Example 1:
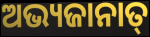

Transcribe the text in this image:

ଅଭ୍ୟଜାନାତ୍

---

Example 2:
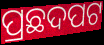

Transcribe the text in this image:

ପ୍ରଛଦପଟ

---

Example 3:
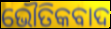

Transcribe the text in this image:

ଭୌତିକବାଦ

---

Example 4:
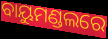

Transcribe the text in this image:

ବାୟୁମଣ୍ଡଲରେ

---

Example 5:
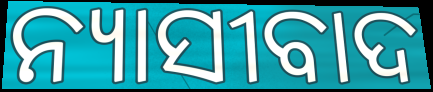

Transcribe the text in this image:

ନ୍ୟାସୀବାଦ